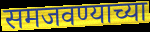
समजवण्याच्या